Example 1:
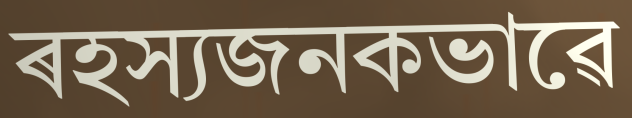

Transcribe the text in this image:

ৰহস্যজনকভাৱে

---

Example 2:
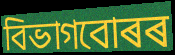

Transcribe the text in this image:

বিভাগবোৰৰ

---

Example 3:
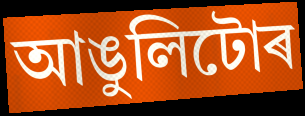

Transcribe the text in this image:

আঙুলিটোৰ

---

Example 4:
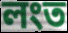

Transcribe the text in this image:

লংত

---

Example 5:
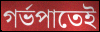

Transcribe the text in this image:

গৰ্ভপাতেই